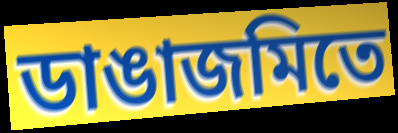
ডাঙাজমিতে